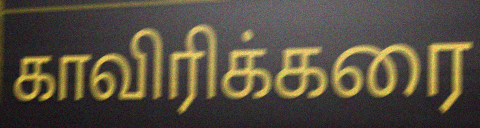
காவிரிக்கரை